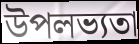
উপলভ্যতা